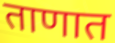
ताणात